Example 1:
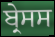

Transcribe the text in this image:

ਬ੍ਰੇਸਸ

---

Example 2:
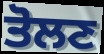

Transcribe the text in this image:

ਤੋਲਣ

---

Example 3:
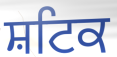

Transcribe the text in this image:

ਸ਼ਟਿਕ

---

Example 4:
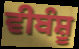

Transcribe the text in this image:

ਵੀਬੰਸ਼ੂ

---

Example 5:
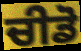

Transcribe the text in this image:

ਚੀਡੋ